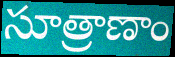
సూత్రాణాం